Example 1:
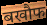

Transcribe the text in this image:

बखौफ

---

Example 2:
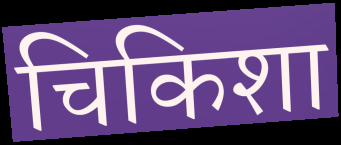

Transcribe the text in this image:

चिकिशा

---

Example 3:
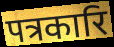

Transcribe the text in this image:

पत्रकारि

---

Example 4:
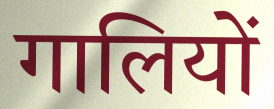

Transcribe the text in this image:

गालियों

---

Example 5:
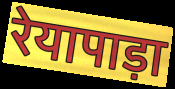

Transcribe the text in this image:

रेयापाड़ा